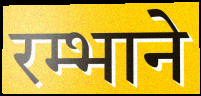
रम्भाने